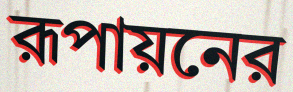
রূপায়নের